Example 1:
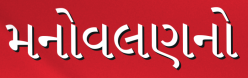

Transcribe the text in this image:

મનોવલણનો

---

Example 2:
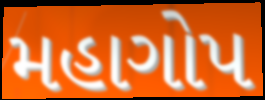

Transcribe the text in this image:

મહાગોપ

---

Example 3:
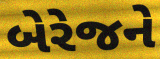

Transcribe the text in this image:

બેરેજને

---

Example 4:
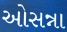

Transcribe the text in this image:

ઓસન્ના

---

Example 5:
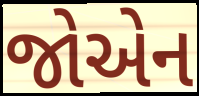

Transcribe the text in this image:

જોએન